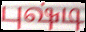
புஷ்டி